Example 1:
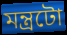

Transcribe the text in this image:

মন্ত্ৰটো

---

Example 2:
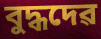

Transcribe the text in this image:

বুদ্ধদেৱ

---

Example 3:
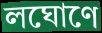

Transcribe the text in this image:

লঘোণে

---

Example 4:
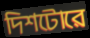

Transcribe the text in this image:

দিশটোৱে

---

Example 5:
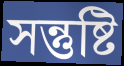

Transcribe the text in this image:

সন্তুষ্টি